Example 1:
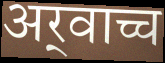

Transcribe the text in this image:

अर्वाच्च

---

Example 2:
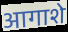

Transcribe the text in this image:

आगाशे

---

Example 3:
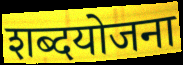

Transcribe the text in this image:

शब्दयोजना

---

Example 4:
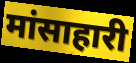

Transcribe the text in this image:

मांसाहारी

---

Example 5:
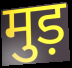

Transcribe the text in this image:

मुड़